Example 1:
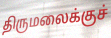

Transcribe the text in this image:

திருமலைக்குச்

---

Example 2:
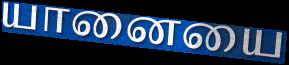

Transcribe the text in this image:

யானையை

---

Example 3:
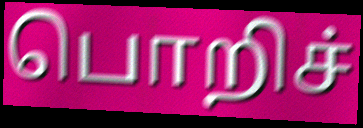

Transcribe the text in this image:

பொறிச்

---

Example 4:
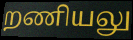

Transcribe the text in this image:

றணியலு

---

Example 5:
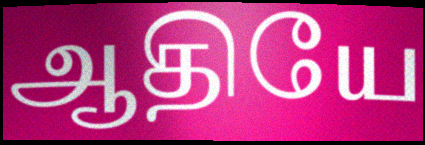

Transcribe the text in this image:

ஆதியே